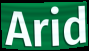
Arid